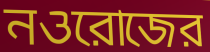
নওরোজের